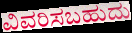
ವಿವರಿಸಬಹುದು